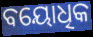
ବୟୋଧିକ